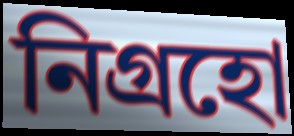
নিগ্রহো